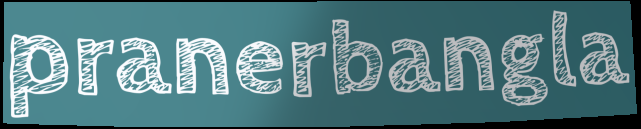
pranerbangla